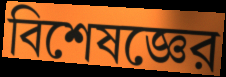
বিশেষজ্ঞের